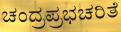
ಚಂದ್ರಪ್ರಭಚರಿತೆ